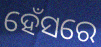
ହେଁସରେ